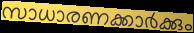
സാധാരണക്കാർക്കും